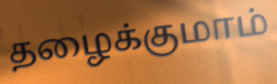
தழைக்குமாம்